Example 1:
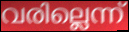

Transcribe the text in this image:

വരില്ലെന്ന്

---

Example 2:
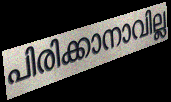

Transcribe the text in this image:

പിരിക്കാനാവില്ല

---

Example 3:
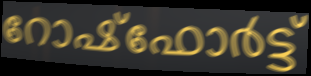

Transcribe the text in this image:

റോഷ്ഫോർട്ട്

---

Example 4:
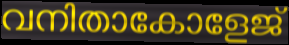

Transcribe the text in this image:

വനിതാകോളേജ്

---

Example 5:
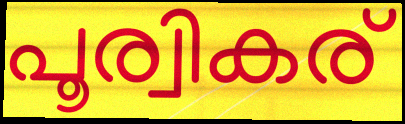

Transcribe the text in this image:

പൂര്വികര്